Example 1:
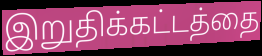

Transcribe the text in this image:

இறுதிக்கட்டத்தை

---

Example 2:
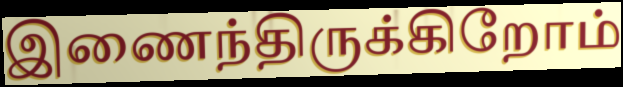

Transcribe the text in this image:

இணைந்திருக்கிறோம்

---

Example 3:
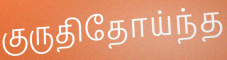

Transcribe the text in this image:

குருதிதோய்ந்த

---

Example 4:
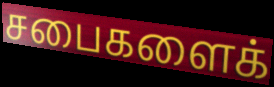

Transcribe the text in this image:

சபைகளைக்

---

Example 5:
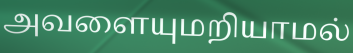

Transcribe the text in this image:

அவளையுமறியாமல்